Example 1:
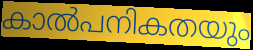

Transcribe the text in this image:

കാൽപനികതയും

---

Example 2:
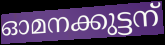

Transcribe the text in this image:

ഓമനക്കുട്ടന്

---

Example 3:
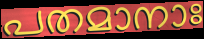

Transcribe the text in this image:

പതമാനാഃ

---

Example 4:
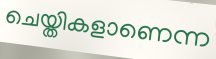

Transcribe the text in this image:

ചെയ്തികളാണെന്ന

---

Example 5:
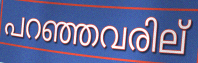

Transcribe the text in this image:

പറഞ്ഞവരില്